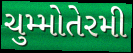
ચુમ્મોતેરમી